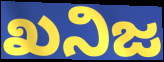
ಖನಿಜ